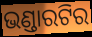
ଭଣ୍ଡାରଟିର